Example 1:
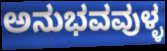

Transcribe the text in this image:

ಅನುಭವವುಳ್ಳ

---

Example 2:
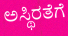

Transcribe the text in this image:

ಅಸ್ಥಿರತೆಗೆ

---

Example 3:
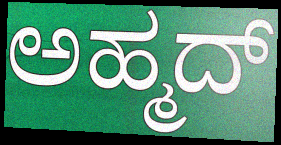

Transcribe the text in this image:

ಅಹ್ಮದ್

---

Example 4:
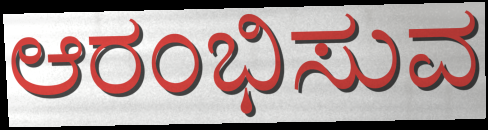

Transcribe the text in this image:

ಆರಂಭಿಸುವ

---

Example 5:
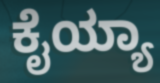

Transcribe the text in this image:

ಕೈಯ್ಯಾ